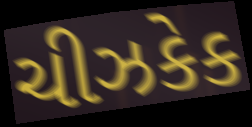
ચીઝકેક